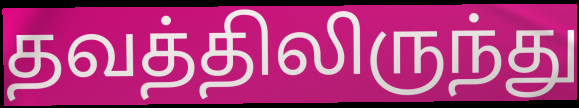
தவத்திலிருந்து